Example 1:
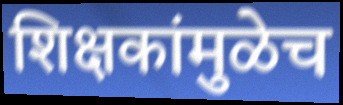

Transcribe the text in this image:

शिक्षकांमुळेच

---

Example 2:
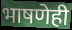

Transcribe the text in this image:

भाषणेही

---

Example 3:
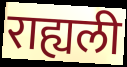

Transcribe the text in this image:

राह्यली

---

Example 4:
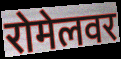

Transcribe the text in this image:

रोमेलवर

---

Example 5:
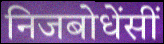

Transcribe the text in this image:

निजबोधेंसीं